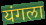
यंगला